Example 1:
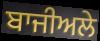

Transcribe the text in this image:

ਬਾਜੀਅਲੇ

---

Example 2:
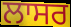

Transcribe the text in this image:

ਲਾਸਰ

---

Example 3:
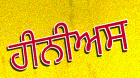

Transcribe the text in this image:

ਹੀਨੀਅਸ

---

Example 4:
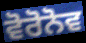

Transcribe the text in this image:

ਵੋਰੋਨੋਵ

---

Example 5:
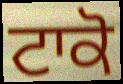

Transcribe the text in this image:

ਟਾਕੋ